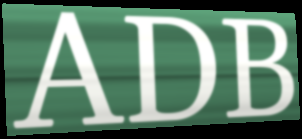
ADB